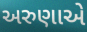
અરુણાએ